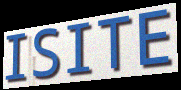
ISITE